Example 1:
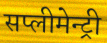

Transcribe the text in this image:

सप्लीमेन्ट्री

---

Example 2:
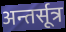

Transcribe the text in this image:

अन्तर्सूत्र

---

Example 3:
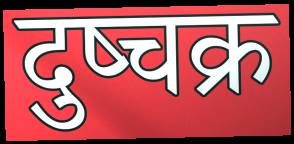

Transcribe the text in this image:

दुष्चक्र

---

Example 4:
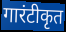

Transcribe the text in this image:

गारंटीकृत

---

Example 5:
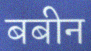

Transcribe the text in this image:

बबीन